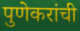
पुणेकरांची